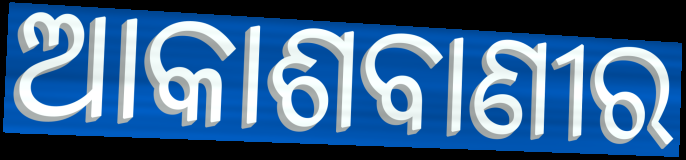
ଆକାଶବାଣୀର